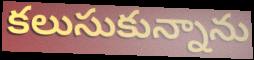
కలుసుకున్నాను